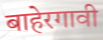
बाहेरगावी